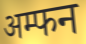
अम्फन